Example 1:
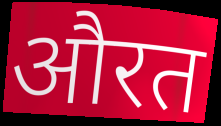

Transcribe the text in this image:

औरत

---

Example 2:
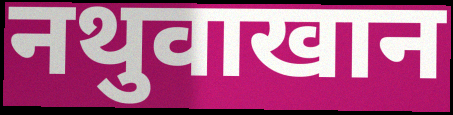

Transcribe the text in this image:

नथुवाखान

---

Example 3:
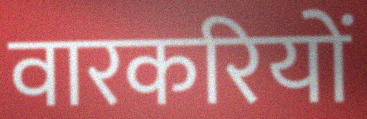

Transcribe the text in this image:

वारकरियों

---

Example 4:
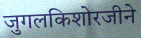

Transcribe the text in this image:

जुगलकिशोरजीने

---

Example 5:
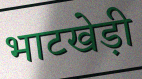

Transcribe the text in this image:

भाटखेड़ी